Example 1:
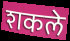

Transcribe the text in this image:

शकले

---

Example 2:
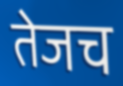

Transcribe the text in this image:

तेजच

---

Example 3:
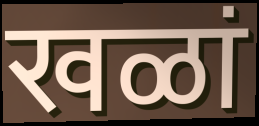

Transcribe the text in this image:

खळां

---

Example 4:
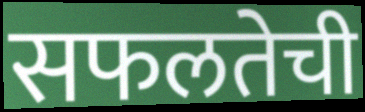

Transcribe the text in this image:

सफलतेची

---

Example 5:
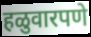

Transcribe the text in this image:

हळुवारपणे